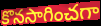
కొనసాగించగా